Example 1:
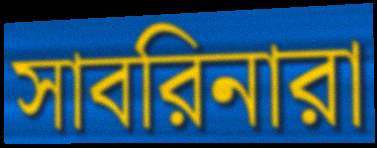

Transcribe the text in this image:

সাবরিনারা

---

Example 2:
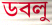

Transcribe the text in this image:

ডবলু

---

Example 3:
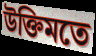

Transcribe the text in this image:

উক্তিমতে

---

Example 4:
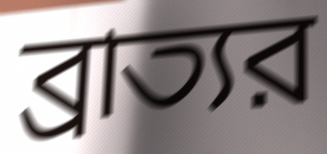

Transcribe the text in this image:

ব্রাত্যর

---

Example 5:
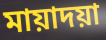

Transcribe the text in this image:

মায়াদয়া